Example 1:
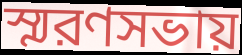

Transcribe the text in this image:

স্মরণসভায়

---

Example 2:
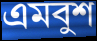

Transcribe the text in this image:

এমবুশ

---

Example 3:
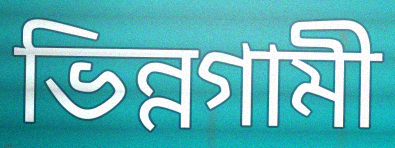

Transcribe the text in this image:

ভিন্নগামী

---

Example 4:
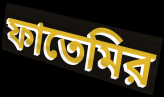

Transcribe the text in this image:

ফাতেমির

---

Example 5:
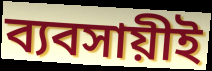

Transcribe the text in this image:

ব্যবসায়ীই